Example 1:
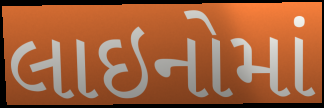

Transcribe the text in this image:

લાઇનોમાં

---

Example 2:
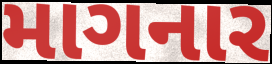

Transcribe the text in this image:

માગનાર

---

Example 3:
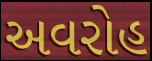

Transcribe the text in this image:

અવરોહ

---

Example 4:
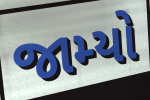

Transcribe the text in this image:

જામ્યો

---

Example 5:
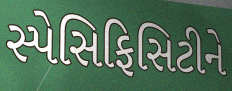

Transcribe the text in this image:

સ્પેસિફિસિટીને